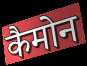
कैमोन